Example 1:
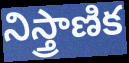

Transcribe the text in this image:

నిస్త్రాణిక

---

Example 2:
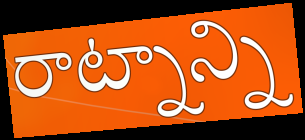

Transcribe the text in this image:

రాట్నాన్ని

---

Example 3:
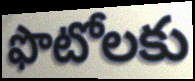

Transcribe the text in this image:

ఫొటోలకు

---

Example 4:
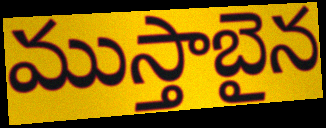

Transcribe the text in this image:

ముస్తాబైన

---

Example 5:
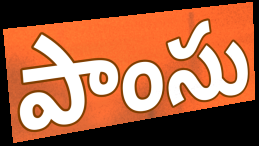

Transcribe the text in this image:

పాంసు